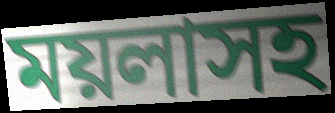
ময়লাসহ